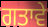
ਗਤਾਵੇ